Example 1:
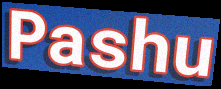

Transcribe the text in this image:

Pashu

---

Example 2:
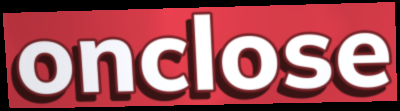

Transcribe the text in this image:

onclose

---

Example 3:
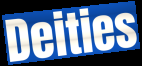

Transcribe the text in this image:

Deities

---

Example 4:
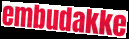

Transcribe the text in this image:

embudakke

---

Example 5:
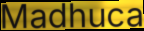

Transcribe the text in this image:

Madhuca